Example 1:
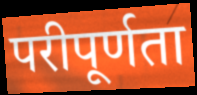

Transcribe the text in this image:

परीपूर्णता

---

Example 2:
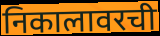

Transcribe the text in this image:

निकालावरची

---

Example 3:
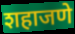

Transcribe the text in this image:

शहाजणे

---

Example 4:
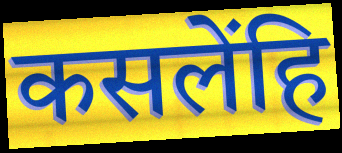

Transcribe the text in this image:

कसलेंहि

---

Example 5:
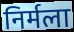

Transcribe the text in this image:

निर्मला